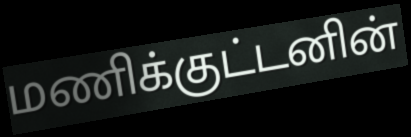
மணிக்குட்டனின்